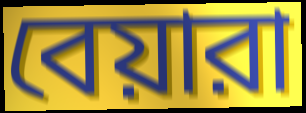
বেয়ারা